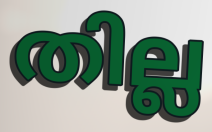
തില്ല